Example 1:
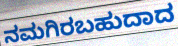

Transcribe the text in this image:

ನಮಗಿರಬಹುದಾದ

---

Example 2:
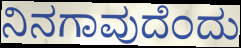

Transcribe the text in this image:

ನಿನಗಾವುದೆಂದು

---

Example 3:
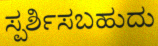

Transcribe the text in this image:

ಸ್ಪರ್ಶಿಸಬಹುದು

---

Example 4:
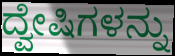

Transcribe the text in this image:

ದ್ವೇಷಿಗಳನ್ನು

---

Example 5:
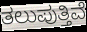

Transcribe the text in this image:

ತಲುಪುತ್ತಿವೆ